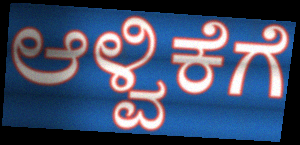
ಆಳ್ವಿಕೆಗೆ